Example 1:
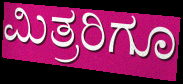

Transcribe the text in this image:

ಮಿತ್ರರಿಗೂ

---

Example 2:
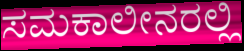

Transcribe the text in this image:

ಸಮಕಾಲೀನರಲ್ಲಿ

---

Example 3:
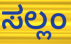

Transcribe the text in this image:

ಸಲ್ಲಂ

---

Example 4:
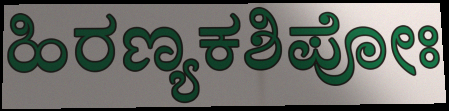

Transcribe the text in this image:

ಹಿರಣ್ಯಕಶಿಪೋಃ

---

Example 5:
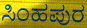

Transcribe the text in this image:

ಸಿಂಹಪುರ